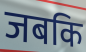
जबकि